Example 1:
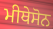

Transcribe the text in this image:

ਮੀਥੇਸੋਨ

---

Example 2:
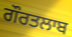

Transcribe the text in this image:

ਗੌਰਤਲਾਬ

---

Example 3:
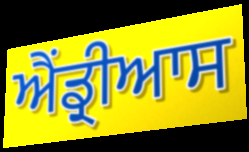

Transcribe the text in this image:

ਐਂਡ੍ਰੀਆਸ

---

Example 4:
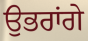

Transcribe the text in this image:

ਉਭਰਾਂਗੇ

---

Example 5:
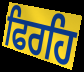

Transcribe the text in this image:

ਫਿਰਹਿ